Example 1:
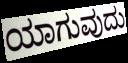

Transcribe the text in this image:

ಯಾಗುವುದು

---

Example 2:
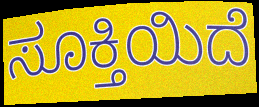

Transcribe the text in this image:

ಸೂಕ್ತಿಯಿದೆ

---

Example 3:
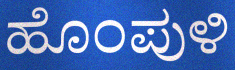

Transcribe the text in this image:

ಹೊಂಪುಳಿ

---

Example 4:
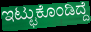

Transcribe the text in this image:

ಇಟ್ಟುಕೊಂಡಿದ್ದೆ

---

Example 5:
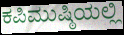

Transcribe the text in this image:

ಕಪಿಮುಷ್ಠಿಯಲ್ಲಿ